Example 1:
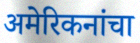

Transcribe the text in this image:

अमेरिकनांचा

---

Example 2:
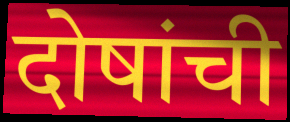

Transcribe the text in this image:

दोषांची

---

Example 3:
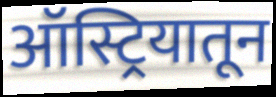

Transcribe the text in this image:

ऑस्ट्रियातून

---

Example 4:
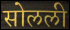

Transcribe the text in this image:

सोलली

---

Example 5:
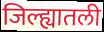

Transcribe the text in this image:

जिल्ह्यातली